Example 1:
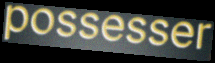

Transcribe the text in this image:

possesser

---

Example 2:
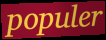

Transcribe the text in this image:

populer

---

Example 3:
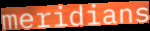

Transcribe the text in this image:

meridians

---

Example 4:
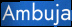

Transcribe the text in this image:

Ambuja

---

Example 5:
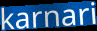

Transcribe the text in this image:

karnari